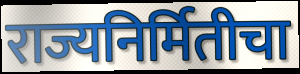
राज्यनिर्मितीचा